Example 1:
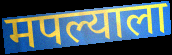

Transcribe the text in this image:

मपल्याला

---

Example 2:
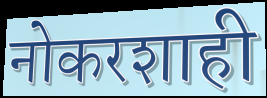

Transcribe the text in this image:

नोकरशाही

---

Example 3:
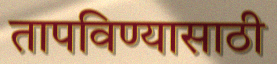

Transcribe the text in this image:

तापविण्यासाठी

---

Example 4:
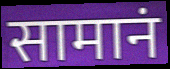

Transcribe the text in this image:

सामानं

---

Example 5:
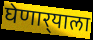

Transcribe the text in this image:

घेणार्‍याला